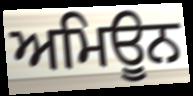
ਅਮਿਊਨ